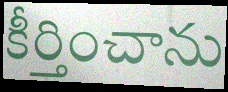
కీర్తించాను